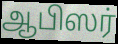
ஆபிஸர்